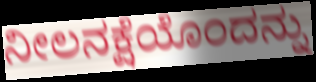
ನೀಲನಕ್ಷೆಯೊಂದನ್ನು